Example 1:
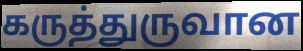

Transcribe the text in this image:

கருத்துருவான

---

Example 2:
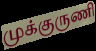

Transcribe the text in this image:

முக்குருணி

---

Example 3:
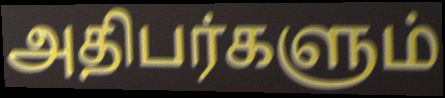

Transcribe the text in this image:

அதிபர்களும்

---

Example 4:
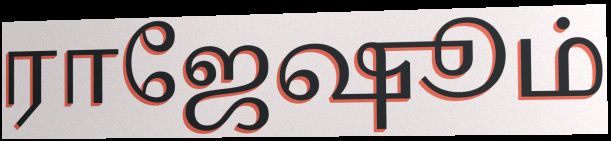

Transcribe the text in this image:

ராஜேஷூம்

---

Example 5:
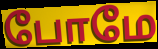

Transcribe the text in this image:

போமே